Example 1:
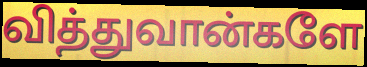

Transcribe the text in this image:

வித்துவான்களே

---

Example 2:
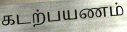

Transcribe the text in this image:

கடற்பயணம்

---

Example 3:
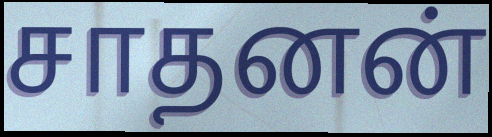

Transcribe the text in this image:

சாதனன்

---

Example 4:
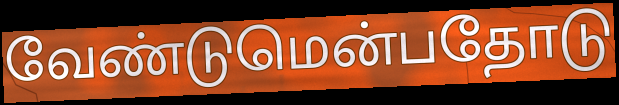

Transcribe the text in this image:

வேண்டுமென்பதோடு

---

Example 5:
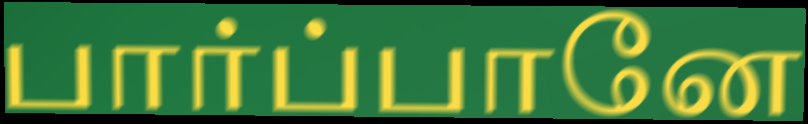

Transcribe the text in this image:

பார்ப்பானே